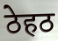
ठेहठ